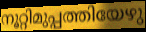
നൂറ്റിമുപ്പത്തിയേഴു